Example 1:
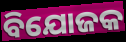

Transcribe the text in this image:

ବିଯୋଜକ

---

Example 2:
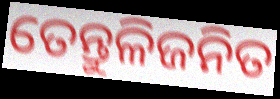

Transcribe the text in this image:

ତେନ୍ତୁଳିଜନିତ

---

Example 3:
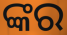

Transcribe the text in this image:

ଙ୍କର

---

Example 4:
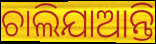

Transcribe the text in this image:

ଚାଲିଯାଆନ୍ତି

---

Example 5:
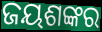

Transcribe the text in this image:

ଜୟଶଙ୍କର